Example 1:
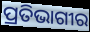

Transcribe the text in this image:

ପ୍ରତିଭାଗୀର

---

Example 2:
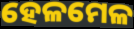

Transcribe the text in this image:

ହେଳମେଳ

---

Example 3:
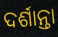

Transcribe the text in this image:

ଦର୍ଶାନ୍ତା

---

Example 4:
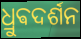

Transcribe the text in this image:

ଧ୍ରୁଵଦର୍ଶନ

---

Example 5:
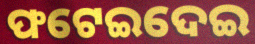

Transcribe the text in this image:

ଫଟେଇଦେଇ